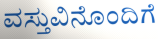
ವಸ್ತುವಿನೊಂದಿಗೆ